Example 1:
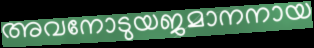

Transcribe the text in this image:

അവനോടുയജമാനനായ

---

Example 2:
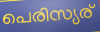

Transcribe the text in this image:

പെരിസ്യര്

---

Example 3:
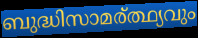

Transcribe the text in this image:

ബുദ്ധിസാമര്ത്ഥ്യവും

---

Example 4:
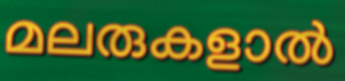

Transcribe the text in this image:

മലരുകളാൽ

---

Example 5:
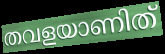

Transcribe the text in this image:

തവളയാണിത്